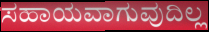
ಸಹಾಯವಾಗುವುದಿಲ್ಲ